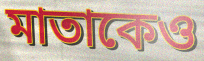
মাতাকেও